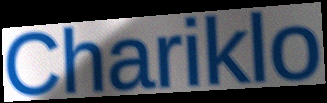
Chariklo